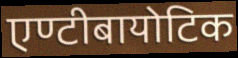
एण्टीबायोटिक